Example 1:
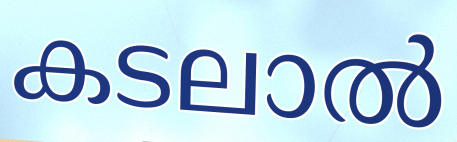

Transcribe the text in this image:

കടലാൽ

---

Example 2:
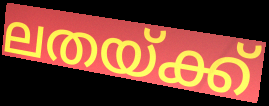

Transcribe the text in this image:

ലതയ്ക്ക്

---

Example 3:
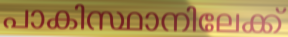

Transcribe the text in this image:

പാകിസ്ഥാനിലേക്ക്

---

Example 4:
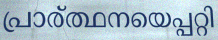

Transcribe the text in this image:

പ്രാര്ത്ഥനയെപ്പറ്റി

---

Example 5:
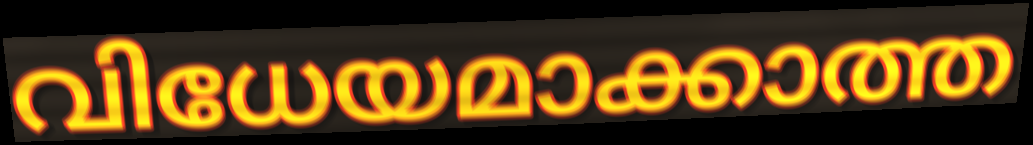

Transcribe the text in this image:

വിധേയമാക്കാത്ത